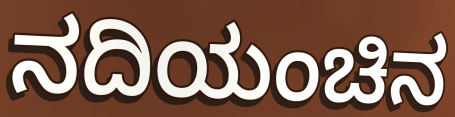
ನದಿಯಂಚಿನ